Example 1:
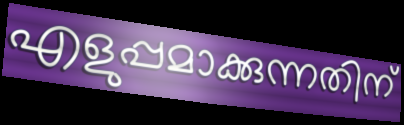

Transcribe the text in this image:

എളുപ്പമാക്കുന്നതിന്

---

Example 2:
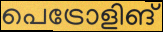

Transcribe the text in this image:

പെട്രോളിങ്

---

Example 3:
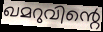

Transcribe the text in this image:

ഖമറുവിന്റെ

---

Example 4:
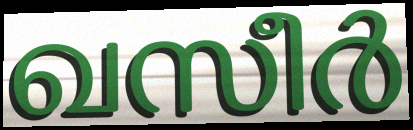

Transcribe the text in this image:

ഖസീർ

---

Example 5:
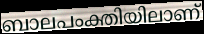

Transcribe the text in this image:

ബാലപംക്തിയിലാണ്